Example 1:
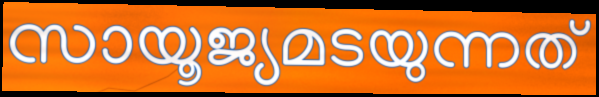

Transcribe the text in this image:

സായൂജ്യമടയുന്നത്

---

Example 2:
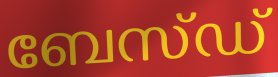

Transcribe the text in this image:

ബേസ്ഡ്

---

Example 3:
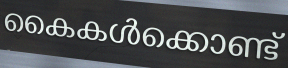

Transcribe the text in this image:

കൈകൾക്കൊണ്ട്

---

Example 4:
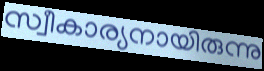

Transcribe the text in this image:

സ്വീകാര്യനായിരുന്നു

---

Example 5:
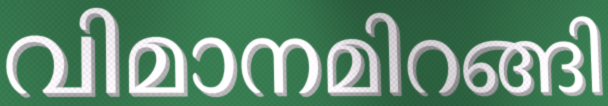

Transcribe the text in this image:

വിമാനമിറങ്ങി